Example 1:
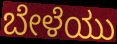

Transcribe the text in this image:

ಬೇಳೆಯು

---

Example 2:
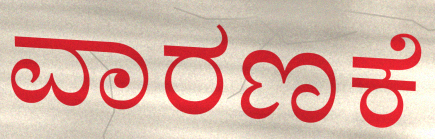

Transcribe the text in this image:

ವಾರಣಕೆ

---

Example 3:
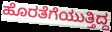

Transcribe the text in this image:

ಹೊರತೆಗೆಯುತ್ತಿದ್ದ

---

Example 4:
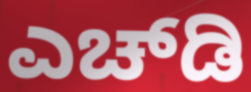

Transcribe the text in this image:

ಎಚ್‍ಡಿ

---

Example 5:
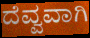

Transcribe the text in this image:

ದೆವ್ವವಾಗಿ